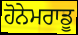
ਹੋਨੇਮਰਾਡੂ